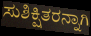
ಸುಶಿಕ್ಷಿತರನ್ನಾಗಿ